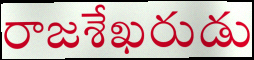
రాజశేఖరుడు